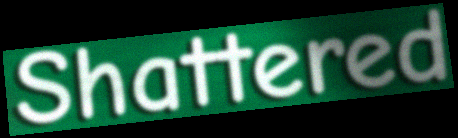
Shattered